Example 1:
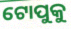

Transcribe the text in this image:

ଟୋପୁକୁ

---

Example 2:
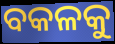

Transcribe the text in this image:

ବକଳକୁ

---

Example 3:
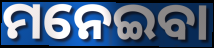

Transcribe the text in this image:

ମନେଇବା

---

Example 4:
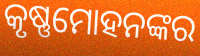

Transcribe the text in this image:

କୃଷ୍ଣମୋହନଙ୍କର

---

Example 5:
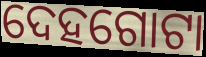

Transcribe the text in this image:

ଦେହଗୋଟା